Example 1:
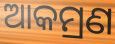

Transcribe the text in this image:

ଆକମ୍ରଣ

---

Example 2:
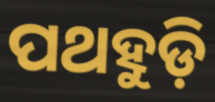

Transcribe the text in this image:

ପଥହୁଡ଼ି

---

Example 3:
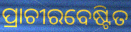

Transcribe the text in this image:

ପ୍ରାଚୀରବେଷ୍ଟିତ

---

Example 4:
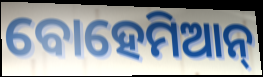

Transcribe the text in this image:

ବୋହେମିଆନ୍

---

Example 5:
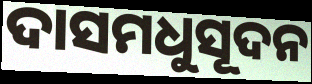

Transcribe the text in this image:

ଦାସମଧୁସୂଦନ